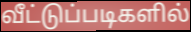
வீட்டுப்படிகளில்